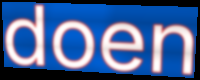
doen